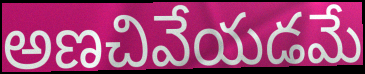
అణచివేయడమే